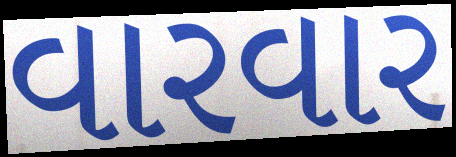
વારવાર